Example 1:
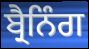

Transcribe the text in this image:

ਬ੍ਰੈਨਿੰਗ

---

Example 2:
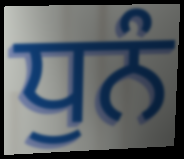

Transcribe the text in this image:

ਧੁਨੰ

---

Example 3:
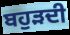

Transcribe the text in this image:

ਬਹੁੜਦੀ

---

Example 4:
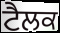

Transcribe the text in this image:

ਟੈਲਕ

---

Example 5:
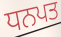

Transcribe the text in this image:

ਧਨਪਤ